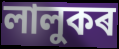
লালুকৰ